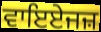
ਵਾਇਏਜਜ਼